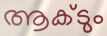
ആക്ടും